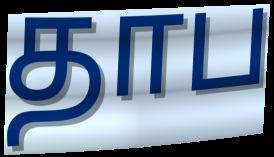
தாப